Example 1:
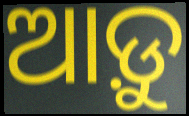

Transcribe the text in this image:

ଆଡ଼ୁ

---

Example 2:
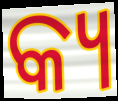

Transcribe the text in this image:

କ୍ୟ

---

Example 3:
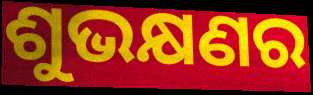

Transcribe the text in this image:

ଶୁଭକ୍ଷଣର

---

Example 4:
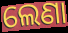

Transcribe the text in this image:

ଲେଣା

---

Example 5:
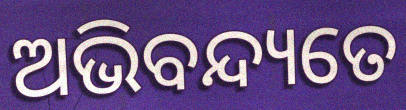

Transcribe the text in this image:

ଅଭିବନ୍ଦ୍ୟତେ